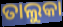
ତାଲୁକା